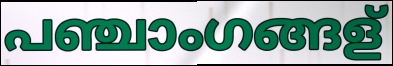
പഞ്ചാംഗങ്ങള്